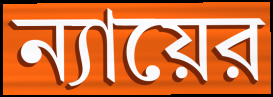
ন্যায়ের